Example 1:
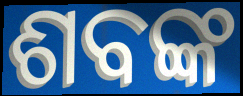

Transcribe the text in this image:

ଶବଙ୍କ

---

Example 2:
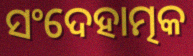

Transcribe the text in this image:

ସଂଦେହାତ୍ମକ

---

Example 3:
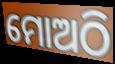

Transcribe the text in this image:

ମୋଅଠି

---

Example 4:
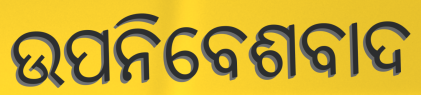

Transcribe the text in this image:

ଉପନିବେଶବାଦ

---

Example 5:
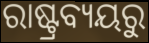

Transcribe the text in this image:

ରାଷ୍ଟ୍ରବ୍ୟୟରୁ